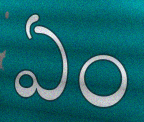
ఏం